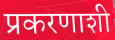
प्रकरणाशी